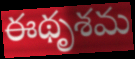
ఈథృశమ